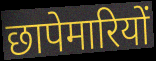
छापेमारियों